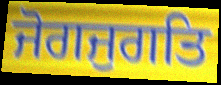
ਜੋਗਜੁਗਤਿ